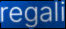
regali